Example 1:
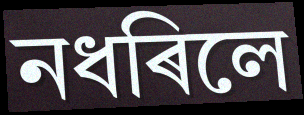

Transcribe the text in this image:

নধৰিলে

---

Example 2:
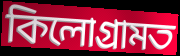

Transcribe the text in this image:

কিলোগ্ৰামত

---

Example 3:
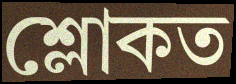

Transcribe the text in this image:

শ্লোকত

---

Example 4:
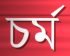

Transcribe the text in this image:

চৰ্ম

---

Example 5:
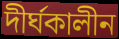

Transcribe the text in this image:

দীৰ্ঘকালীন